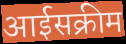
आईसक्रीम